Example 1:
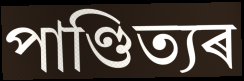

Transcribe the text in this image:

পাণ্ডিত্যৰ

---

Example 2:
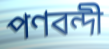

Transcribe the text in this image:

পণবন্দী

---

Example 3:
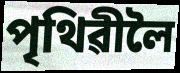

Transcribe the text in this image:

পৃথিৱীলৈ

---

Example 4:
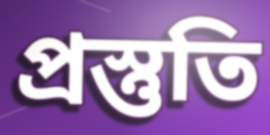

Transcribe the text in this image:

প্ৰস্তুতি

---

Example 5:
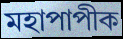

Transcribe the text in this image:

মহাপাপীক